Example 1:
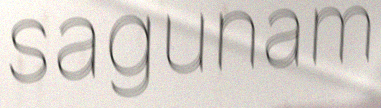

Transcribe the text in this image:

sagunam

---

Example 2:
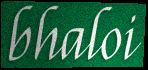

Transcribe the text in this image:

bhaloi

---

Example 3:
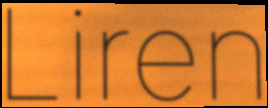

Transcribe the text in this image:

Liren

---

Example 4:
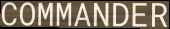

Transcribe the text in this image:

COMMANDER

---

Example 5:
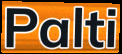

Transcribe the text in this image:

Palti